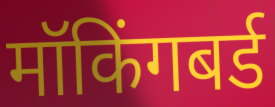
मॉकिंगबर्ड